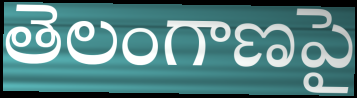
తెలంగాణపై